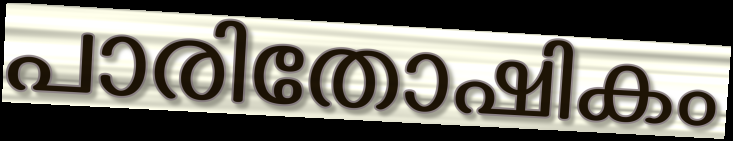
പാരിതോഷികം